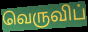
வெருவிப்